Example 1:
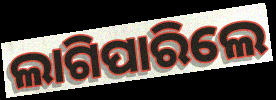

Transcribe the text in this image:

ଲାଗିପାରିଲେ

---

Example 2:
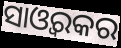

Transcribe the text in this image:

ସାଓ୍ୱରକର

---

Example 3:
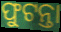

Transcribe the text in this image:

ଫୁଟନ୍ତା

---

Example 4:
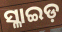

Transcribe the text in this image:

ସ୍ଳାଇଡ଼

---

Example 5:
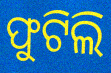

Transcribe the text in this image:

ଫୁଟିଲି